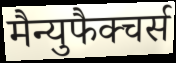
मैन्युफैक्चर्स